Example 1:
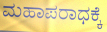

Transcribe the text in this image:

ಮಹಾಪರಾಧಕ್ಕೆ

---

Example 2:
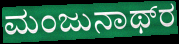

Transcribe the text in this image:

ಮಂಜುನಾಥ್‌ರ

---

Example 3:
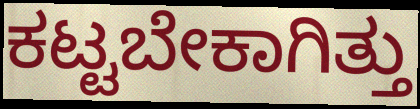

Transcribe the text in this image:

ಕಟ್ಟಬೇಕಾಗಿತ್ತು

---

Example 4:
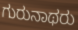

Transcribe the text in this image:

ಗುರುನಾಥರು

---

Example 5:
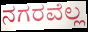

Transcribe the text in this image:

ನಗರವೆಲ್ಲ